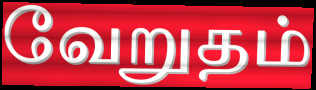
வேறுதம்